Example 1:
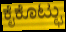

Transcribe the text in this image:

ಕೈಕೊಟ್ಟು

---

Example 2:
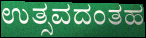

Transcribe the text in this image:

ಉತ್ಸವದಂತಹ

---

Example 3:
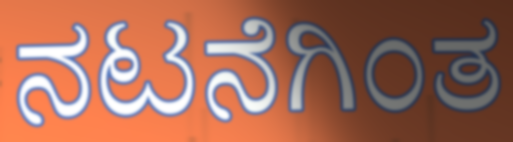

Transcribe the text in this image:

ನಟನೆಗಿಂತ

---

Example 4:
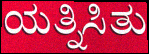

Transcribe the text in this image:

ಯತ್ನಿಸಿತು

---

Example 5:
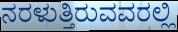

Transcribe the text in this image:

ನರಳುತ್ತಿರುವವರಲ್ಲಿ